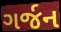
ગર્જન